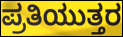
ಪ್ರತಿಯುತ್ತರ